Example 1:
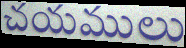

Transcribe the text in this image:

చయములు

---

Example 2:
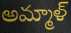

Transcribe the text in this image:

అమ్మాళ్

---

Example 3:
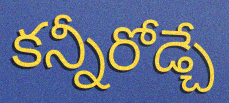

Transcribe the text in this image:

కన్నీరోడ్చే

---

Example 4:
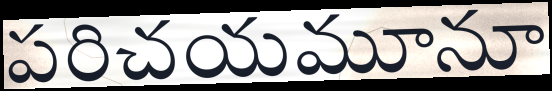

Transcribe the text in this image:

పరిచయమూనూ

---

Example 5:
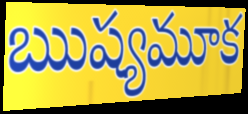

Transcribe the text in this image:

ఋష్యమూక